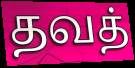
தவத்